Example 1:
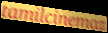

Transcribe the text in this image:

tamilcinemaz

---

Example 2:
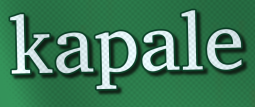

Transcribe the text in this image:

kapale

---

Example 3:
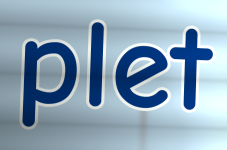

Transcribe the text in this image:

plet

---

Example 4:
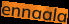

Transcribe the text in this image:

ennaala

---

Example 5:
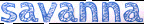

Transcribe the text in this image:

savanna